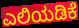
ಎಲಿಯಡಿಕೆ